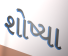
શોષ્યા